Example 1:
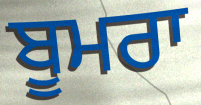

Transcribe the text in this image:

ਬੂਮਰਾ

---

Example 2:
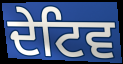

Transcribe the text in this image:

ਦੇਟਿਵ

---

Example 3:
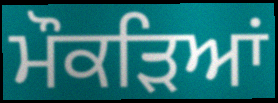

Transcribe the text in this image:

ਮੌਕੜਿਆਂ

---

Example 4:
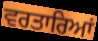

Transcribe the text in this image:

ਵਰਤਾਰਿਆਂ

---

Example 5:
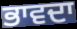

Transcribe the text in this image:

ਭਾਵਦਾ